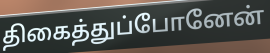
திகைத்துப்போனேன்